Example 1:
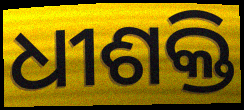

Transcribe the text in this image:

ଧୀଶକ୍ତି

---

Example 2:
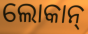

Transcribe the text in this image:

ଲୋକାନ୍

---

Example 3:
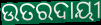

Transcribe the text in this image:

ଉତରଦାୟୀ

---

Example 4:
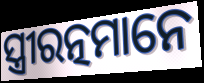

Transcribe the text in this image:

ସ୍ତ୍ରୀରତ୍ନମାନେ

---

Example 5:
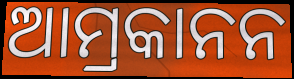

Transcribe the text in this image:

ଆମ୍ରକାନନ